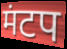
मंटप